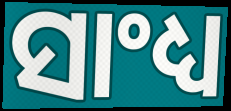
ସାଂଧ୍ୟ